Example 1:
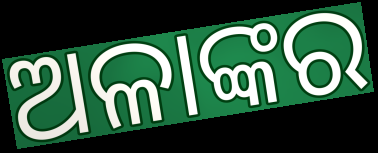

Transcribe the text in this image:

ଅଳାଙ୍କର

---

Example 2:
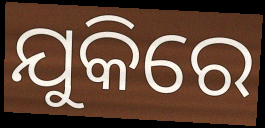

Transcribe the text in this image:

ଯୁକିରେ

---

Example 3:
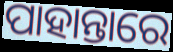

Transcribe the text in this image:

ପାହାନ୍ତାରେ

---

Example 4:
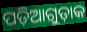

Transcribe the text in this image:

ପଡ଼ିଆଗୁଡ଼ାକ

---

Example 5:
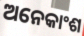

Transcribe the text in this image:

ଅନେକାଂଶ